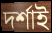
দৰ্শাই